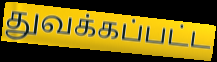
துவக்கப்பட்ட